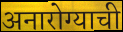
अनारोग्याची